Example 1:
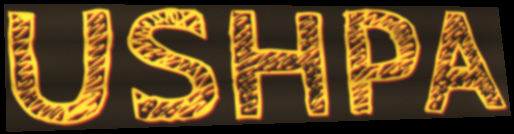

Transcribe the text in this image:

USHPA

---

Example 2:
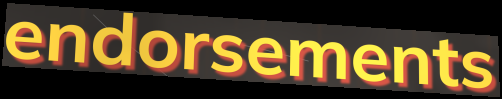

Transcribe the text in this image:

endorsements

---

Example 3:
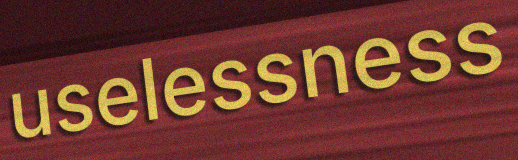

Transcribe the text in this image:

uselessness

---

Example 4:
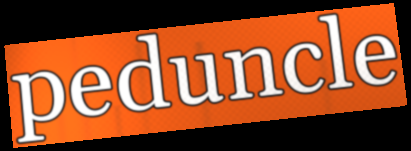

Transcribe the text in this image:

peduncle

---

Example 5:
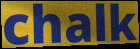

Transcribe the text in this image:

chalk